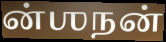
ன்ஶநன்